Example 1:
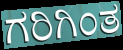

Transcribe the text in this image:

ಗರಿಗಿಂತ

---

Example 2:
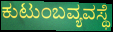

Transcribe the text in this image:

ಕುಟುಂಬವ್ಯವಸ್ಥೆ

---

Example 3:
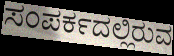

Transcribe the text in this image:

ಸಂಪರ್ಕದಲ್ಲಿರುವ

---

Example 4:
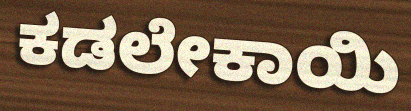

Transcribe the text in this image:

ಕಡಲೇಕಾಯಿ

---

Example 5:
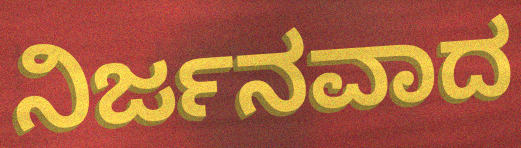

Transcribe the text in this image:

ನಿರ್ಜನವಾದ